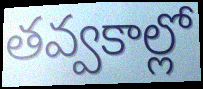
తవ్వకాల్లో